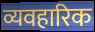
व्यवहारिक